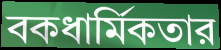
বকধার্মিকতার